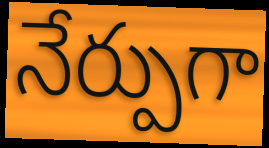
నేర్పుగా